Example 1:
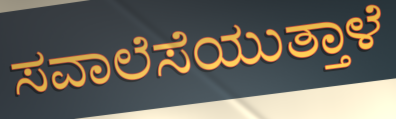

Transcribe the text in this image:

ಸವಾಲೆಸೆಯುತ್ತಾಳೆ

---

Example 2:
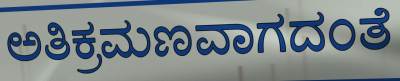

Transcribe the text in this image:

ಅತಿಕ್ರಮಣವಾಗದಂತೆ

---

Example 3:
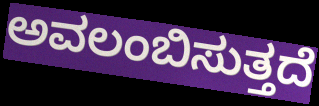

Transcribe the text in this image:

ಅವಲಂಬಿಸುತ್ತದೆ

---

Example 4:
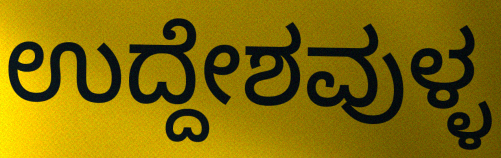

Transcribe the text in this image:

ಉದ್ದೇಶವುಳ್ಳ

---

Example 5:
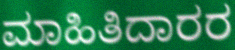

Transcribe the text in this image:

ಮಾಹಿತಿದಾರರ